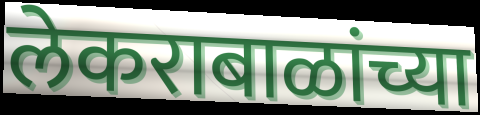
लेकराबाळांच्या